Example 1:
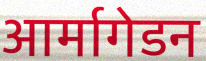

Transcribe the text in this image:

आर्मागेडन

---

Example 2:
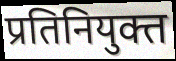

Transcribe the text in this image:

प्रतिनियुक्त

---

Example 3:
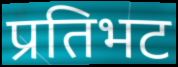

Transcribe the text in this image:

प्रतिभट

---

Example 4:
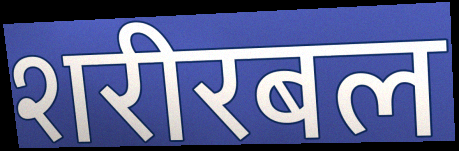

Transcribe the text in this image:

शरीरबल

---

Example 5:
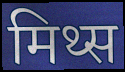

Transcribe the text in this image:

मिथ्स